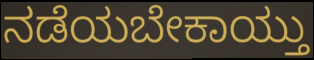
ನಡೆಯಬೇಕಾಯ್ತು